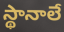
స్థానాలే